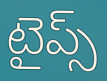
టైప్స్